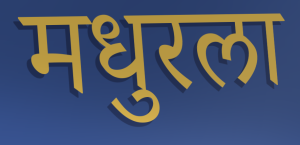
मधुरला